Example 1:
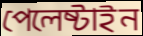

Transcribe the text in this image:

পেলেষ্টাইন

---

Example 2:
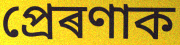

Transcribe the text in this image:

প্ৰেৰণাক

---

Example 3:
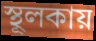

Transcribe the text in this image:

স্থূলকায়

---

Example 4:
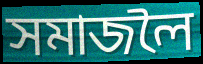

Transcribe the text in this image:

সমাজলৈ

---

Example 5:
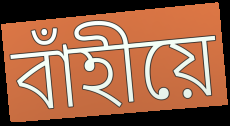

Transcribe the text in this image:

বাঁহীয়ে